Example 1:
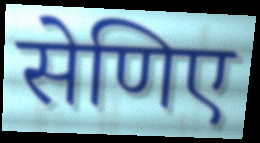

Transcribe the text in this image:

सेणिए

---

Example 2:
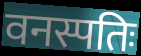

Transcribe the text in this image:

वनस्पतिः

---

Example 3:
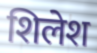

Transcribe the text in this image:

शिलेश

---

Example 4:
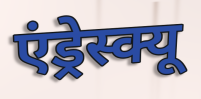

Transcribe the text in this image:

एंड्रेस्क्यू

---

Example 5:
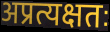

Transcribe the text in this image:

अप्रत्यक्षतः